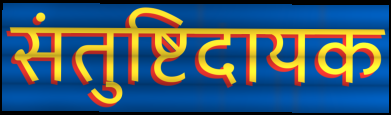
संतुष्टिदायक